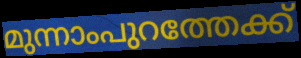
മുന്നാംപുറത്തേക്ക്